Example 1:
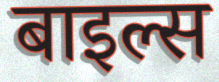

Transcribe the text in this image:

बाइल्स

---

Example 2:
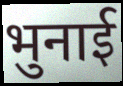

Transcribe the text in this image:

भुनाई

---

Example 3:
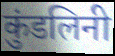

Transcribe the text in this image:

कुंडलिनी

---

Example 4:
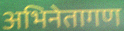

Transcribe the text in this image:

अभिनेतागण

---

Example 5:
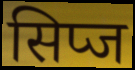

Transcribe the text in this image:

सिप्ज